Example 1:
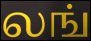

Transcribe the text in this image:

லங்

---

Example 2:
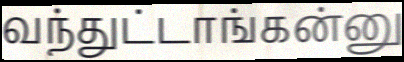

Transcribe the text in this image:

வந்துட்டாங்கன்னு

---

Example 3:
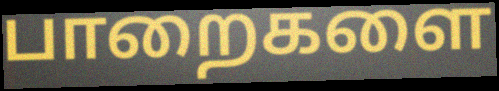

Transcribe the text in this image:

பாறைகளை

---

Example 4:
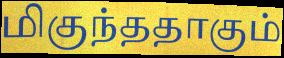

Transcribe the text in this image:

மிகுந்ததாகும்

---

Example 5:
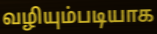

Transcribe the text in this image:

வழியும்படியாக